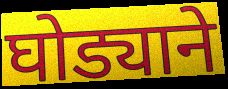
घोड्याने